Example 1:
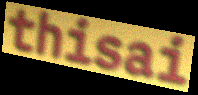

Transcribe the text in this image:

thisai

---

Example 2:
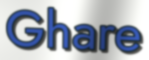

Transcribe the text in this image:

Ghare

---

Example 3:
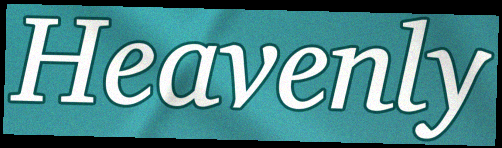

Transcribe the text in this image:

Heavenly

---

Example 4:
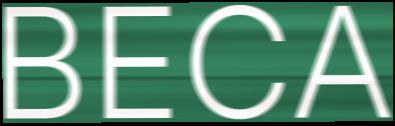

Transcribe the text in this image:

BECA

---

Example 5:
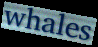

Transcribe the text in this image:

whales